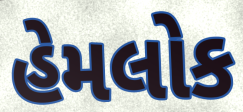
હેમલોક